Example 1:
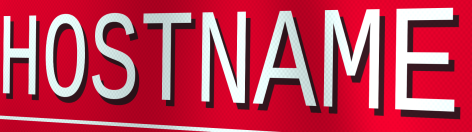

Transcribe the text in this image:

HOSTNAME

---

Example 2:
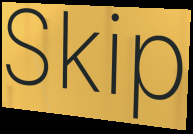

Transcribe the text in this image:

Skip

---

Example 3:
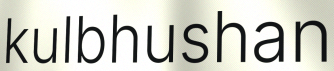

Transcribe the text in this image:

kulbhushan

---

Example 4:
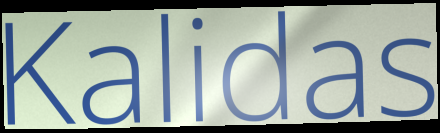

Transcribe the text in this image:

Kalidas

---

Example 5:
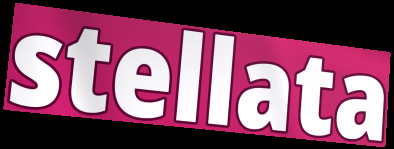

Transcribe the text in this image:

stellata